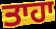
ਤਾਹਾ